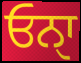
ਓਨਾੑ